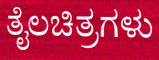
ತೈಲಚಿತ್ರಗಳು